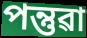
পন্তুৱা